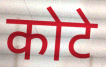
कोटे